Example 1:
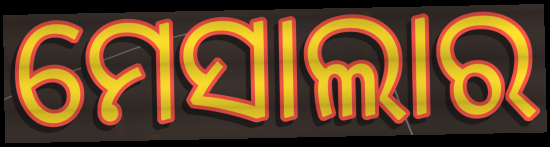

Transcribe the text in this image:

ମେସାଲାର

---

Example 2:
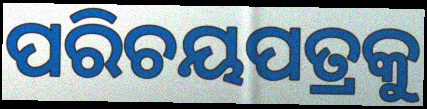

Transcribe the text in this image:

ପରିଚୟପତ୍ରକୁ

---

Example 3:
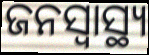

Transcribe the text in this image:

ଜନସ୍ବାସ୍ଥ୍ୟ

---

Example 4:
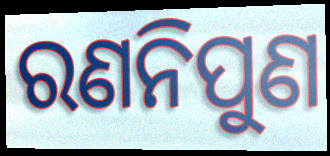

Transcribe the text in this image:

ରଣନିପୁଣ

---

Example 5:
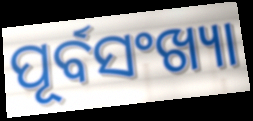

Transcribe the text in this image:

ପୂର୍ବସଂଖ୍ୟା